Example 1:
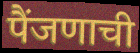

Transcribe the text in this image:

पैंजणाची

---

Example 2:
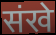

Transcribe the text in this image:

संखे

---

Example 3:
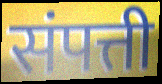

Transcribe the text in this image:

संपत्ती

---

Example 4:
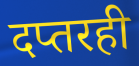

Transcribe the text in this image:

दप्तरही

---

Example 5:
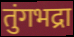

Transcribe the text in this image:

तुंगभद्रा